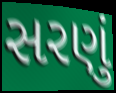
સરણું